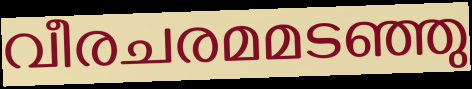
വീരചരമമടഞ്ഞു